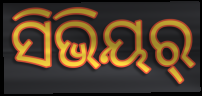
ସିଭିୟର୍